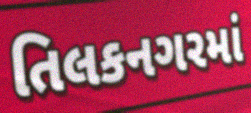
તિલકનગરમાં